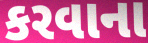
કરવાના